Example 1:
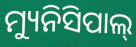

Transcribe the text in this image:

ମ୍ୟୁନିସିପାଲ୍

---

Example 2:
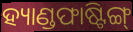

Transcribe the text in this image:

ହ୍ୟାଣ୍ଡଫାଷ୍ଟିଙ୍ଗ୍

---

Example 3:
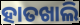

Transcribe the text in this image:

ହାତଖାଲି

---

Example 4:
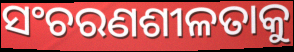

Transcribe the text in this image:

ସଂଚରଣଶୀଳତାକୁ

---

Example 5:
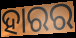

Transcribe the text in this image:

ହାରର